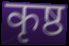
कृष्ठ